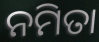
ନମିତା